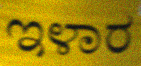
ಇಳಾರ